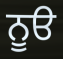
ਨੂੳ